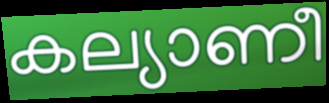
കല്യാണീ